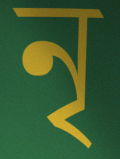
নৃ